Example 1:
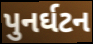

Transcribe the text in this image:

પુનર્ઘટન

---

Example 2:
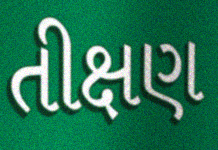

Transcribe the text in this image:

તીક્ષણ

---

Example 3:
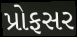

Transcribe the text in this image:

પ્રોફસર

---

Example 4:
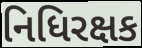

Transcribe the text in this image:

નિધિરક્ષક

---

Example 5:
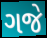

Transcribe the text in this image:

ગજે